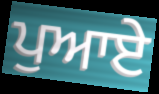
ਪੁਆਏ